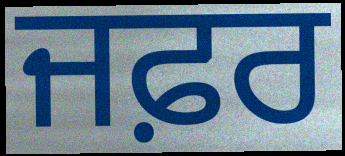
ਜਫ਼ਰ